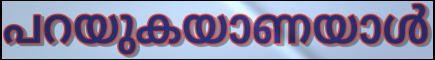
പറയുകയാണയാൾ